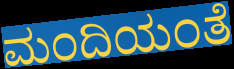
ಮಂದಿಯಂತೆ